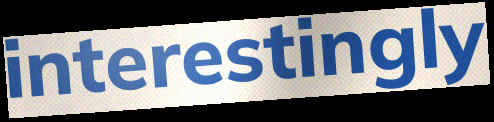
interestingly